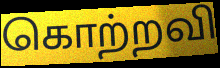
கொற்றவி